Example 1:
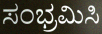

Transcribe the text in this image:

ಸಂಭ್ರಮಿಸಿ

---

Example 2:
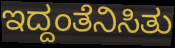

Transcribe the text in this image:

ಇದ್ದಂತೆನಿಸಿತು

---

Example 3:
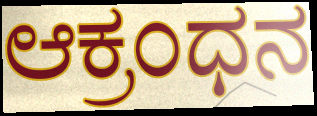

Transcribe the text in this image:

ಆಕ್ರಂಧನ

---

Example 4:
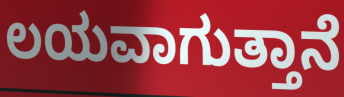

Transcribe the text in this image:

ಲಯವಾಗುತ್ತಾನೆ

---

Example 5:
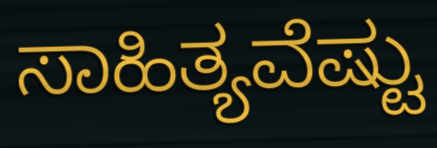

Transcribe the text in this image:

ಸಾಹಿತ್ಯವೆಷ್ಟು